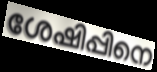
ശേഷിപ്പിനെ